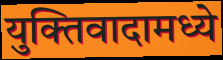
युक्तिवादामध्ये